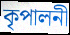
কৃপালনী